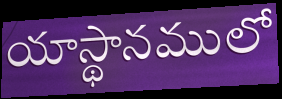
యాస్థానములో